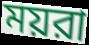
ময়রা